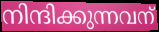
നിന്ദിക്കുന്നവന്